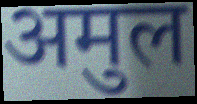
अमुल